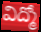
విద్మో